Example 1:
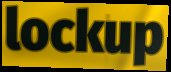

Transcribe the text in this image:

lockup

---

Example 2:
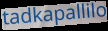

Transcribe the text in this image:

tadkapallilo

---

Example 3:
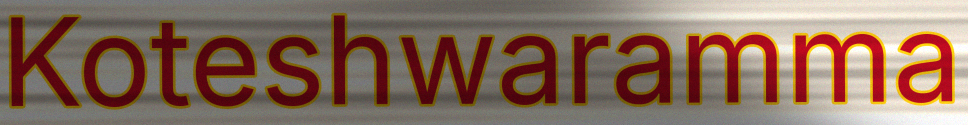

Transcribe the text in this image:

Koteshwaramma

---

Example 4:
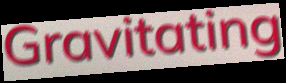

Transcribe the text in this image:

Gravitating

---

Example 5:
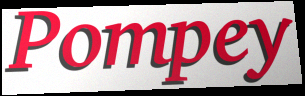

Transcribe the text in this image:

Pompey